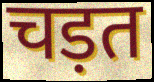
चड़त